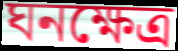
ঘনক্ষেত্র